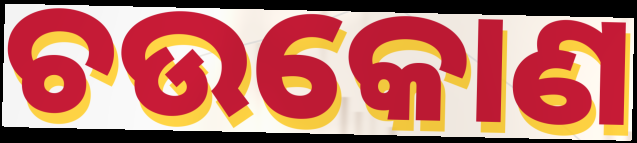
ଚଉକୋଣ